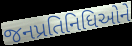
જનપ્રતિનિધિઓને